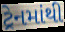
ટ્રેનમાંથી